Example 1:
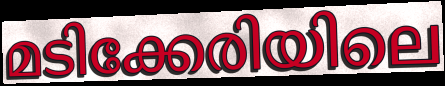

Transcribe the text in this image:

മടിക്കേരിയിലെ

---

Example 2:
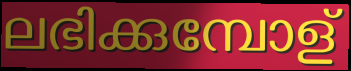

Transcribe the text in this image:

ലഭിക്കുമ്പോള്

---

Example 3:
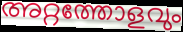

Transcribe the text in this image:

അറ്റത്തോളവും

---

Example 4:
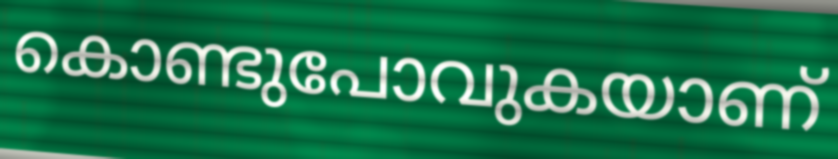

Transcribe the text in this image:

കൊണ്ടുപോവുകയാണ്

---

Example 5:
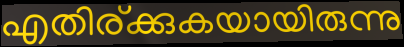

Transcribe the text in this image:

എതിര്ക്കുകയായിരുന്നു